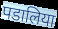
पडालिया